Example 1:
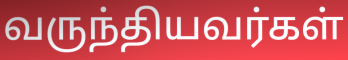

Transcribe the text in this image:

வருந்தியவர்கள்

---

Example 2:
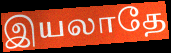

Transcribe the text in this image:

இயலாதே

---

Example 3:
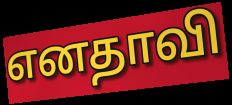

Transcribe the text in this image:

எனதாவி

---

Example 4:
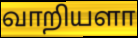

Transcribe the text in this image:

வாறியளா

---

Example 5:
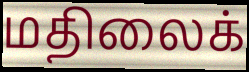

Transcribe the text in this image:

மதிலைக்